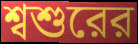
শ্বশুরের